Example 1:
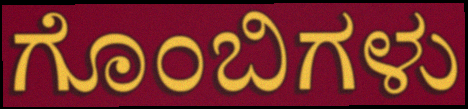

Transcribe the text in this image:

ಗೊಂಬಿಗಳು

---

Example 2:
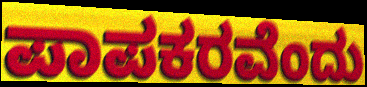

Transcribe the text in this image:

ಪಾಪಕರವೆಂದು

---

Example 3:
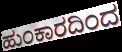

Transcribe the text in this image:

ಹುಂಕಾರದಿಂದ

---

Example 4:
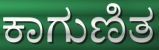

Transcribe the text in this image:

ಕಾಗುಣಿತ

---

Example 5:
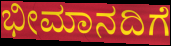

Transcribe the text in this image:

ಭೀಮಾನದಿಗೆ